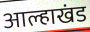
आल्हाखंड